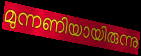
മുന്നണിയായിരുന്നു